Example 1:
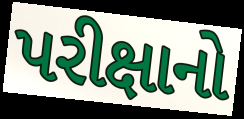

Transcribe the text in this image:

પરીક્ષાનો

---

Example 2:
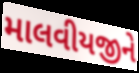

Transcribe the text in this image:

માલવીયજીને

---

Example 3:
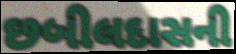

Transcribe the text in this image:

છબીલદાસની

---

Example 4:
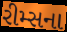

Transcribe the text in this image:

રીમ્સના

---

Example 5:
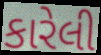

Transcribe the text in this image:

કારેલી